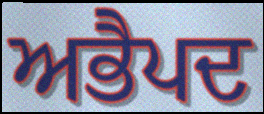
ਅਭੈਪਦ